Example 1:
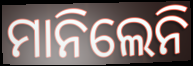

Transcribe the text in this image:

ମାନିଲେନି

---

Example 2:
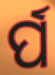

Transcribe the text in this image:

ର୍ପ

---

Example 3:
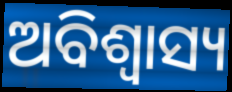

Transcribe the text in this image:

ଅବିଶ୍ୱାସ୍ୟ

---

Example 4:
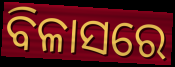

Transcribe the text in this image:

ବିଳାସରେ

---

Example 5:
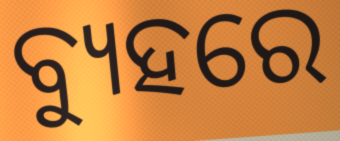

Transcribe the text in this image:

ବ୍ୟୁହରେ